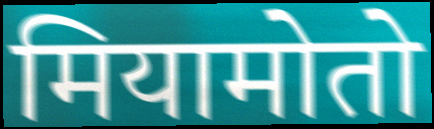
मियामोतो